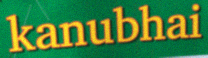
kanubhai